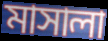
মাসালা